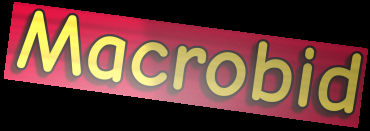
Macrobid